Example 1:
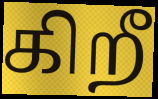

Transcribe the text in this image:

கிறீ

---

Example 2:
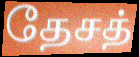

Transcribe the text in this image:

தேசத்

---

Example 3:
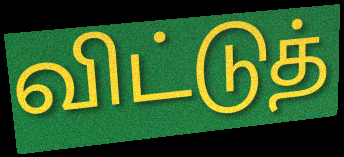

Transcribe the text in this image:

விட்டுத்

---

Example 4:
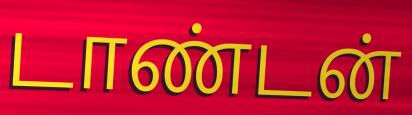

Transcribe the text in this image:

டாண்டன்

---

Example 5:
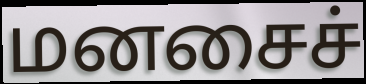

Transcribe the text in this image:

மனசைச்